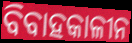
ବିବାହକାଳୀନ